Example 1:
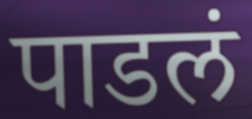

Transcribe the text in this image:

पाडलं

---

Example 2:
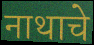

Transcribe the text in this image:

नाथाचे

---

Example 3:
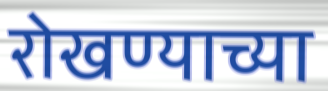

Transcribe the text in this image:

रोखण्याच्या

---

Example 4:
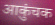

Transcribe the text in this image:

आकुंचक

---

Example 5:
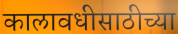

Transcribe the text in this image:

कालावधीसाठीच्या